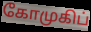
கோமுகிப்